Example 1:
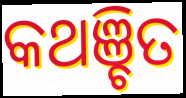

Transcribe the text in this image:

କଥଞ୍ଚିତ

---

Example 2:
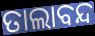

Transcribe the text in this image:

ତାଲାବନ୍ଦ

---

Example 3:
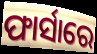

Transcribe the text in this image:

ଫାର୍ସାରେ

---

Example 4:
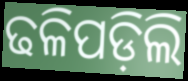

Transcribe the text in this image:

ଢଳିପଡ଼ିଲି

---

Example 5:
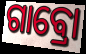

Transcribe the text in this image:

ଗାବ୍ରୋ